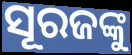
ସୂରଜଙ୍କୁ